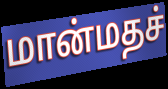
மான்மதச்